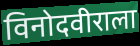
विनोदवीराला